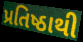
પ્રતિષ્ઠાથી